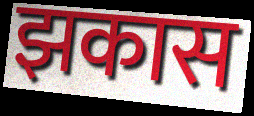
झकास